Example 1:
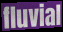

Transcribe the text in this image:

fluvial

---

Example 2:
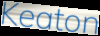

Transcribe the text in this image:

Keaton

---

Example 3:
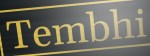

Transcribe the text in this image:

Tembhi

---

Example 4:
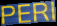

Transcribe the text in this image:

PERI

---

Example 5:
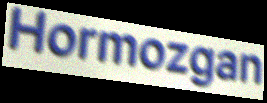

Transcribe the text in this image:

Hormozgan